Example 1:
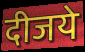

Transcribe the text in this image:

दीजये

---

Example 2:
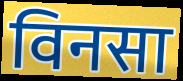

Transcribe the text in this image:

विनसा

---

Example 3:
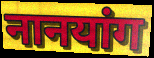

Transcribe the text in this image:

नानयांग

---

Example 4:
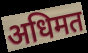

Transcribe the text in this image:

अधिमत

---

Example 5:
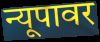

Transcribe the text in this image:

न्यूपावर